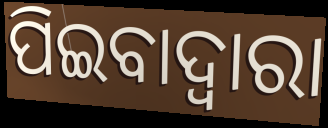
ପିଇବାଦ୍ଵାରା